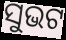
ସୁଭଟ